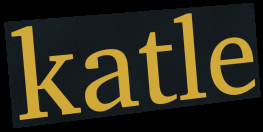
katle